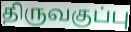
திருவகுப்பு